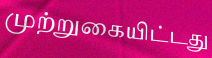
முற்றுகையிட்டது